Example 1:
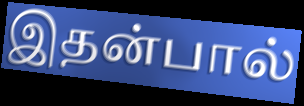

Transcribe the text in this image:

இதன்பால்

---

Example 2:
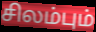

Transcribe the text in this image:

சிலம்பும்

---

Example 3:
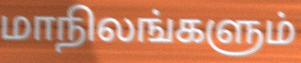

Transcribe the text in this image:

மாநிலங்களும்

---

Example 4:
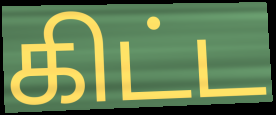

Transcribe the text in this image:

கிட்ட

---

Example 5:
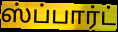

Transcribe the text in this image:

ஸ்ப்பார்ட்